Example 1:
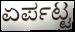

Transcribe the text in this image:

ಏರ್ಪಟ್ಟ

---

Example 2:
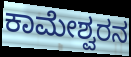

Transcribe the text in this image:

ಕಾಮೇಶ್ವರನ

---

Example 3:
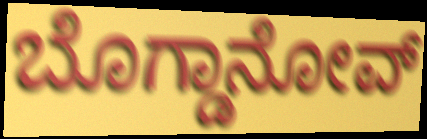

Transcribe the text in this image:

ಬೊಗ್ಡಾನೋವ್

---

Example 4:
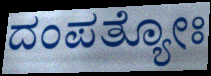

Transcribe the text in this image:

ದಂಪತ್ಯೋಃ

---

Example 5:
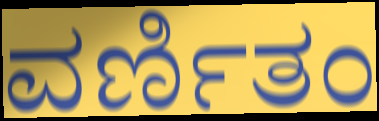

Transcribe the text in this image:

ವರ್ಣಿತಂ